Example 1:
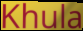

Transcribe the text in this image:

Khula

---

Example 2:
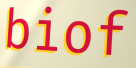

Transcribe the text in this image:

biof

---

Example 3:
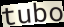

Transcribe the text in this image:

tubo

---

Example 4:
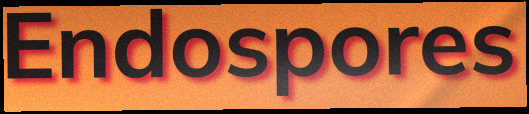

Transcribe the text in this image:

Endospores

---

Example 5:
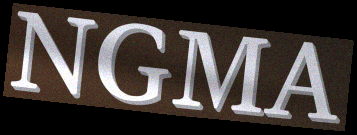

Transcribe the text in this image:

NGMA